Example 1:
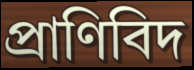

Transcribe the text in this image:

প্রাণিবিদ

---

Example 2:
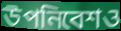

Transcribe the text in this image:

উপনিবেশও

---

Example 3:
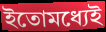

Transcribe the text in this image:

ইতোমধ্যেই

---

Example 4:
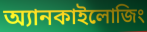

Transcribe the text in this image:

অ্যানকাইলোজিং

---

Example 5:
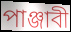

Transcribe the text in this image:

পাঞ্জাবী